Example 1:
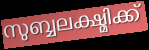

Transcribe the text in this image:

സുബ്ബലക്ഷ്മിക്ക്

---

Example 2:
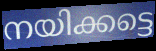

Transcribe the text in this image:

നയിക്കട്ടെ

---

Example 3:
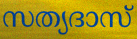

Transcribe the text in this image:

സത്യദാസ്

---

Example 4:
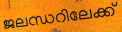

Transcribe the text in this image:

ജലന്ധറിലേക്ക്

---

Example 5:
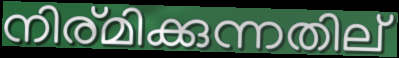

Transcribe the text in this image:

നിര്മിക്കുന്നതില്